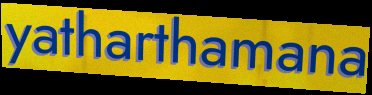
yatharthamana